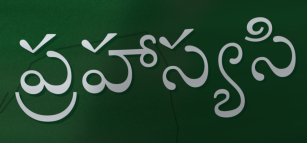
ప్రహాస్యసి